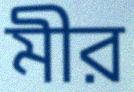
মীর